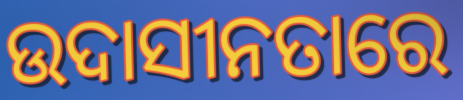
ଉଦାସୀନତାରେ